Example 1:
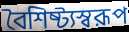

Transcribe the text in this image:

বৈশিষ্ট্যস্বরূপ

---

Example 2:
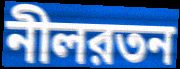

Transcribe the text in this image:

নীলরতন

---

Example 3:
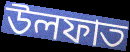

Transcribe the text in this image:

উলফাত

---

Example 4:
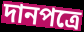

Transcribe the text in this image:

দানপত্রে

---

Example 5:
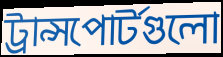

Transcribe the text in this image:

ট্রান্সপোর্টগুলো